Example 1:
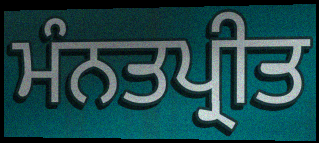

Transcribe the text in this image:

ਮੰਨਤਪ੍ਰੀਤ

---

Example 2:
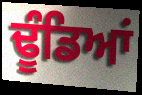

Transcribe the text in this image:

ਢੂੰਡਿਆਂ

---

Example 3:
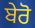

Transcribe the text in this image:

ਬੇਰੋ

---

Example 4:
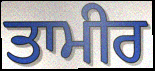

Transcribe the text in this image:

ਤਾਮੀਰ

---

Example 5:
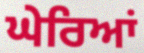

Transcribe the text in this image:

ਘੇਰਿਆਂ